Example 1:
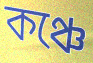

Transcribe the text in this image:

কঞ্চে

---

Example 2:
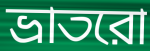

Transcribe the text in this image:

ভ্রাতরো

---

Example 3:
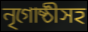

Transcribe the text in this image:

নৃগোষ্ঠীসহ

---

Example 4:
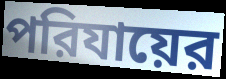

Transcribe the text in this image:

পরিযায়ের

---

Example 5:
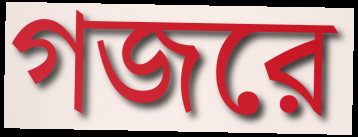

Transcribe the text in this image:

গজরে